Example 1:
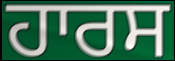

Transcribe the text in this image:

ਹਾਰਸ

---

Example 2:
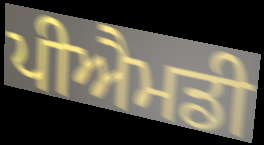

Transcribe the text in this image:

ਪੀਐਮਡੀ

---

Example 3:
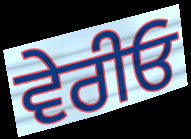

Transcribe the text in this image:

ਵੇਰੀਓ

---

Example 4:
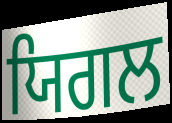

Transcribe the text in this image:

ਯਿਗਲ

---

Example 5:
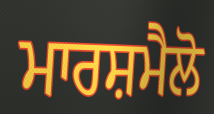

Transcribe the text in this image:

ਮਾਰਸ਼ਮੈਲੋ